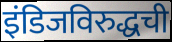
इंडिजविरुद्धची